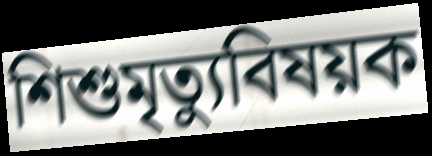
শিশুমৃত্যুবিষয়ক